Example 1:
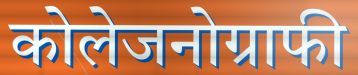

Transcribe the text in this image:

कोलेजनोग्राफी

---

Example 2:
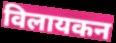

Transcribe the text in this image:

विलायकन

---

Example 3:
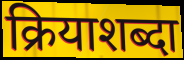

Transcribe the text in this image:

क्रियाशब्दा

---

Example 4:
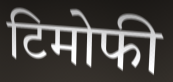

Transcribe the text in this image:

टिमोफी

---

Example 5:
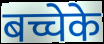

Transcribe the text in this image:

बच्चेके